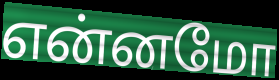
என்னமோ